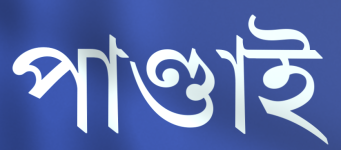
পাণ্ডাই